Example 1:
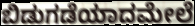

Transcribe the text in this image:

ಬಿಡುಗಡೆಯಾದಮೇಲೆ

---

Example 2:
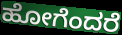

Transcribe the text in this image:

ಹೋಗೆಂದರೆ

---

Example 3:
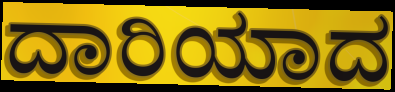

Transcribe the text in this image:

ದಾರಿಯಾದ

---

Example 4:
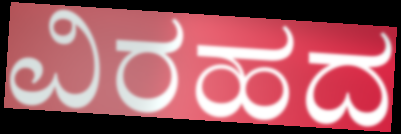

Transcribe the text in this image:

ವಿರಹದ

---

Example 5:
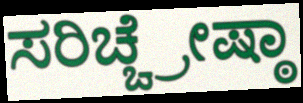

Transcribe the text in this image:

ಸರಿಚ್ಚ್ರೇಷ್ಠಾ